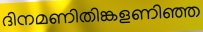
ദിനമണിതിങ്കളണിഞ്ഞ